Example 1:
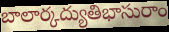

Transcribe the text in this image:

బాలార్కద్యుతిభాసురాం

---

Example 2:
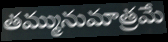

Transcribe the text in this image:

తమ్మునుమాత్రమే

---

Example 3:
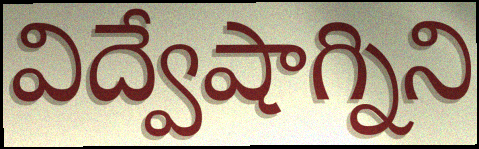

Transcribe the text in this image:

విద్వేషాగ్నిని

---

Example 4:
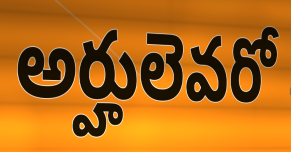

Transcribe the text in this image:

అర్హులెవరో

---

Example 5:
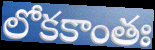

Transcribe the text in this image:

లోకకాంతః